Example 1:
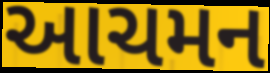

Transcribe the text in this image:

આચમન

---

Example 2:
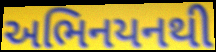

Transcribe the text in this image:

અભિનયનથી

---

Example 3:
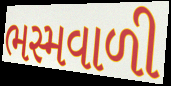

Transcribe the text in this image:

ભસ્મવાળી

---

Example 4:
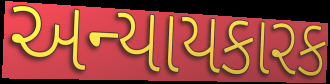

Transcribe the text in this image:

અન્યાયકારક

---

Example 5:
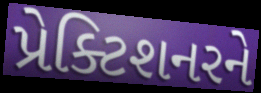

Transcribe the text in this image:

પ્રેક્ટિશનરને